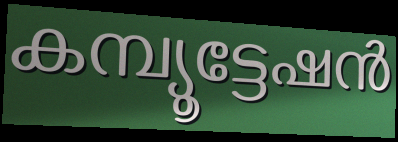
കമ്പ്യൂട്ടേഷൻ